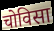
चोविसा